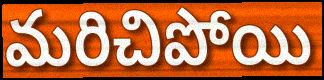
మరిచిపోయి